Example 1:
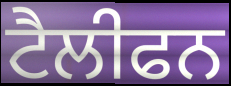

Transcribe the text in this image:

ਟੈਲੀਫਨ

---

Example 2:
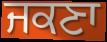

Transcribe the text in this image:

ਜਕਣਾ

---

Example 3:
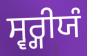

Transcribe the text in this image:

ਸ੍ਵਰ੍ਗੀਯੰ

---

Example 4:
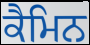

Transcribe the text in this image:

ਕੈਮਿਨ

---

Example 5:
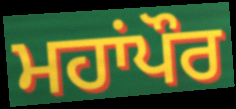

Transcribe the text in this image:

ਮਹਾਂਪੌਰ